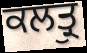
ਕਲਤ੍ਰੁ